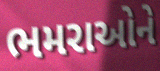
ભમરાઓને